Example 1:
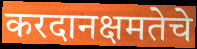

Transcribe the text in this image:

करदानक्षमतेचे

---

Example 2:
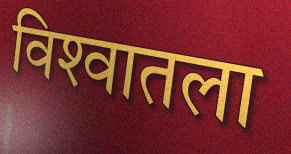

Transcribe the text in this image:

विश्‍वातला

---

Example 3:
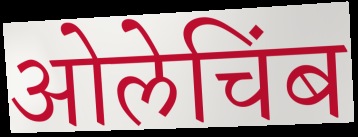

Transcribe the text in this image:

ओलेचिंब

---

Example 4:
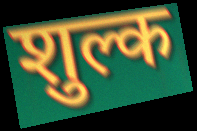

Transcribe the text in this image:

शुल्क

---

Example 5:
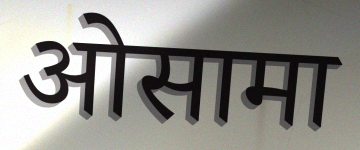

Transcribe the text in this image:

ओसामा